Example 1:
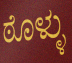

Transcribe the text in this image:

ಠೊಳ್ಳು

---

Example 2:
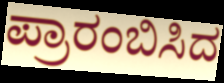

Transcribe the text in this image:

ಪ್ರಾರಂಬಿಸಿದ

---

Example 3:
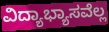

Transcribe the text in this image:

ವಿದ್ಯಾಭ್ಯಾಸವೆಲ್ಲ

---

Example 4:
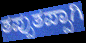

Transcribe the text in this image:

ತಪ್ಪುತಪ್ಪಾಗಿ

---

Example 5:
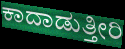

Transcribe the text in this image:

ಕಾದಾಡುತ್ತೀರಿ